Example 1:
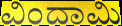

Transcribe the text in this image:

ವಿಂದಾಮಿ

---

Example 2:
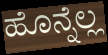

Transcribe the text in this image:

ಹೊನ್ನೆಲ್ಲ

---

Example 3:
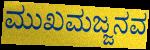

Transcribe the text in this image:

ಮುಖಮಜ್ಜನವ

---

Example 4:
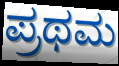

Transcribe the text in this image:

ಪ್ರಥಮ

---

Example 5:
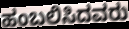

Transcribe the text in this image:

ಹಂಬಲಿಸಿದವರು